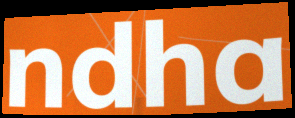
ndha